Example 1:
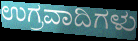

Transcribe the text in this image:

ಉಗ್ರವಾದಿಗಳು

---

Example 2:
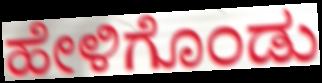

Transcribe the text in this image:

ಹೇಳಿಗೊಂಡು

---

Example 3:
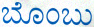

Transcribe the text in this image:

ಬೊಂಬು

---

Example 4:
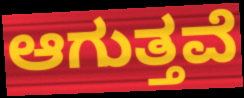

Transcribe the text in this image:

ಆಗುತ್ತವೆ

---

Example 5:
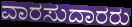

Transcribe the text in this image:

ವಾರಸುದಾರರು